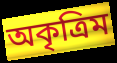
অকৃত্রিম